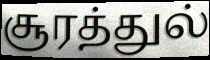
சூரத்துல்